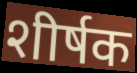
शीर्षक